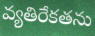
వ్యతిరేకతను